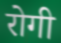
रोगी